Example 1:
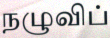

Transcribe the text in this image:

நழுவிப்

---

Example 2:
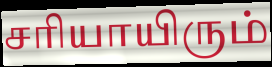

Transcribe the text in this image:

சரியாயிரும்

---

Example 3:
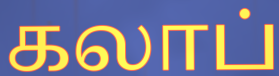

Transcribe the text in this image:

கலாப்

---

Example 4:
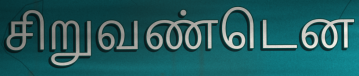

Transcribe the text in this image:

சிறுவண்டென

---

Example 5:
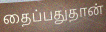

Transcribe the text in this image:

தைப்பதுதான்